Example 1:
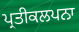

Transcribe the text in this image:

ਪ੍ਰਤੀਕਲਪਨਾ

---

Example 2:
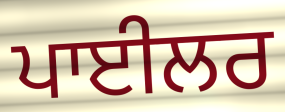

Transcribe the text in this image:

ਪਾਈਲਰ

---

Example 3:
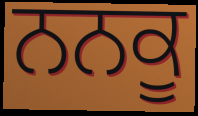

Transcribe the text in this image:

ਨਨਕੂ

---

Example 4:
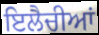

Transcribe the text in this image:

ਇਲੈਚੀਆਂ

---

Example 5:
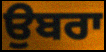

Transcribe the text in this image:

ਉਬਰਾ